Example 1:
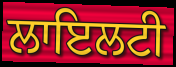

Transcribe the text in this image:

ਲਾਇਲਟੀ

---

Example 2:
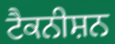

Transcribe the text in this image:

ਟੈਕਨੀਸ਼ਨ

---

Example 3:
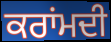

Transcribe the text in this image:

ਕਰਾਂਮਦੀ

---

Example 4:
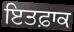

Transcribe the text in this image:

ਇਤਫ਼ਾਕ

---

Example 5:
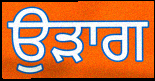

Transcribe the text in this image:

ਉੜਾਗ